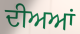
ਦੀਅਆਂ